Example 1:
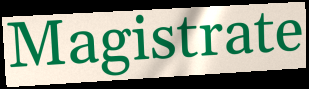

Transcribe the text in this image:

Magistrate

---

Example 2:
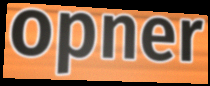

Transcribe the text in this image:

opner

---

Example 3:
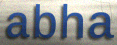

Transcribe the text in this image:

abha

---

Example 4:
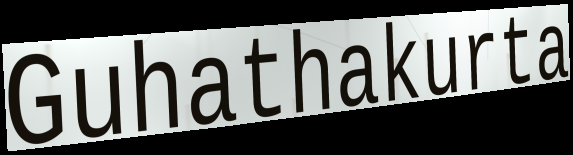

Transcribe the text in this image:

Guhathakurta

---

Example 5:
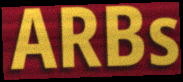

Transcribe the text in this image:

ARBs